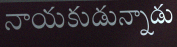
నాయకుడున్నాడు